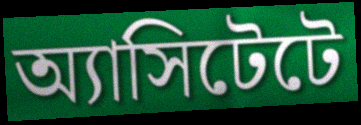
অ্যাসিটেটে